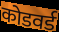
कोडवर्ड